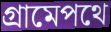
গ্রামেপথে